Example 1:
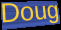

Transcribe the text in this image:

Doug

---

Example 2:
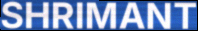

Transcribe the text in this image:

SHRIMANT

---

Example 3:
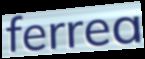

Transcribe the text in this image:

ferrea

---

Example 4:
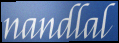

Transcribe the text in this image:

nandlal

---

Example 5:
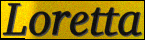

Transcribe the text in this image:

Loretta